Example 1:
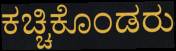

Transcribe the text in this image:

ಕಚ್ಚಿಕೊಂಡರು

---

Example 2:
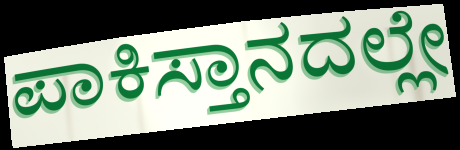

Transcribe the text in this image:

ಪಾಕಿಸ್ತಾನದಲ್ಲೇ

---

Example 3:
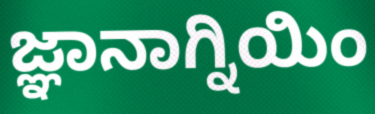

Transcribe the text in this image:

ಜ್ಞಾನಾಗ್ನಿಯಿಂ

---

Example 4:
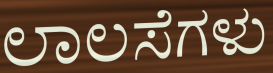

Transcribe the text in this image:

ಲಾಲಸೆಗಳು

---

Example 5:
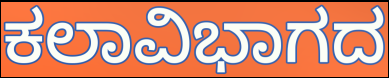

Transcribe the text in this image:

ಕಲಾವಿಭಾಗದ